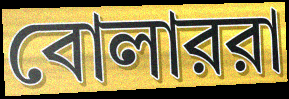
বোলাররা